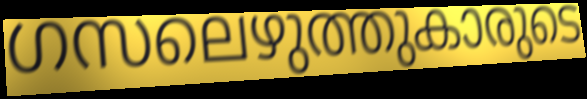
ഗസലെഴുത്തുകാരുടെ